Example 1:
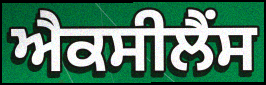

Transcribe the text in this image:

ਐਕਸੀਲੈਂਸ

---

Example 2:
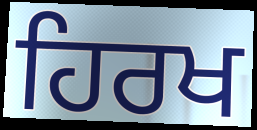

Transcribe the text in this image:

ਹਿਰਖ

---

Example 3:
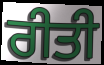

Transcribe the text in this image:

ਰੀਤੀ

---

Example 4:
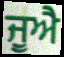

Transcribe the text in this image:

ਜੂਐ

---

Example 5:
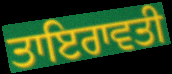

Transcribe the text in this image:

ਤਾਇਰਾਵਤੀ